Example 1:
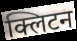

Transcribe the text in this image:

क्लिटन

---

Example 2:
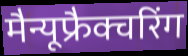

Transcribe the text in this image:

मैन्यूफ्रैक्चरिंग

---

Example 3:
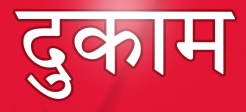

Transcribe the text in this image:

दुकाम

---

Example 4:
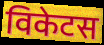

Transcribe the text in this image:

विकेटस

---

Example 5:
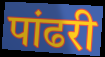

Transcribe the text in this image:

पांढरी